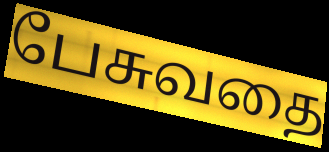
பேசுவதை